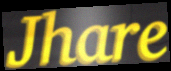
Jhare